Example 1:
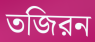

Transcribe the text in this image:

তজিরন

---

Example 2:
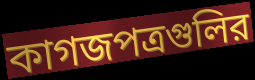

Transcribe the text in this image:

কাগজপত্রগুলির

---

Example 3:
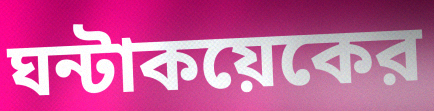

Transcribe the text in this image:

ঘন্টাকয়েকের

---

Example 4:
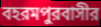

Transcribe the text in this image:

বহরমপুরবাসীর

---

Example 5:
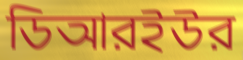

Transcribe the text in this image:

ডিআরইউর